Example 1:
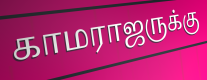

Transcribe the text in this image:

காமராஜருக்கு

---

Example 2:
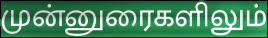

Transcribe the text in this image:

முன்னுரைகளிலும்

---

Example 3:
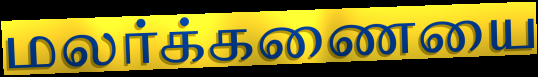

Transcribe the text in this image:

மலர்க்கணையை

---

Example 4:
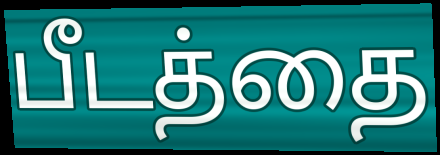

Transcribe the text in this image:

பீடத்தை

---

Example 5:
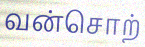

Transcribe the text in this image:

வன்சொற்